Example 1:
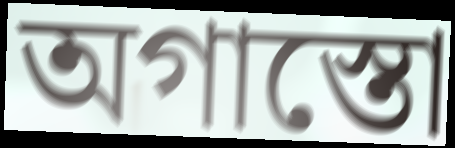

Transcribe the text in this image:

অগাস্তো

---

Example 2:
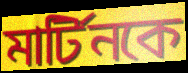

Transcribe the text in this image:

মার্টিনকে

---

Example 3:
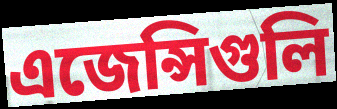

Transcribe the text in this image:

এজেন্সিগুলি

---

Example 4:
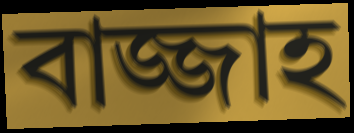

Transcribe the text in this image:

বাজ্জাহ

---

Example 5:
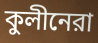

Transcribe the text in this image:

কুলীনেরা